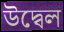
উদ্বেল